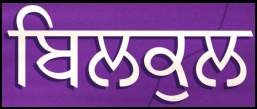
ਬਿਲਕੁਲ